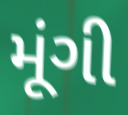
મૂંગી